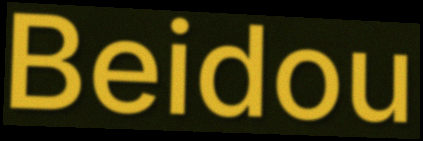
Beidou